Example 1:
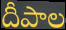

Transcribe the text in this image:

దీపాల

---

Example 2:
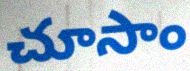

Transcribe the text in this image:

చూసాం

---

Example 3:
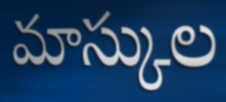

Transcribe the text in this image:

మాస్కుల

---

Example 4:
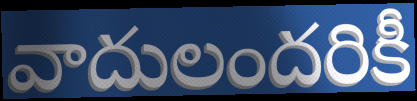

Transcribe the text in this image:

వాదులందరికీ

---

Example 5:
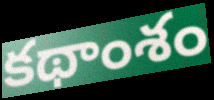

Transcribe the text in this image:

కథాంశం